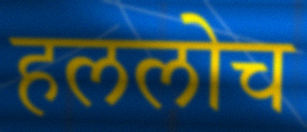
हललोच